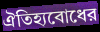
ঐতিহ্যবোধের